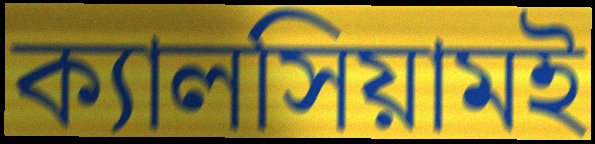
ক্যালসিয়ামই